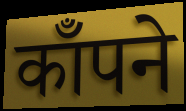
कॉँपने